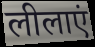
लीलाएं